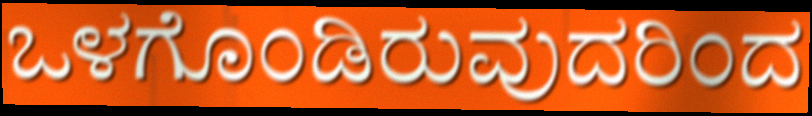
ಒಳಗೊಂಡಿರುವುದರಿಂದ